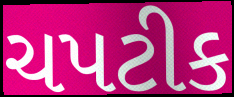
ચપટીક